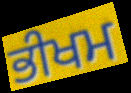
ਭੀਖਮ